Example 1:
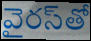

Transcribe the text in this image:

వైరస్‌తో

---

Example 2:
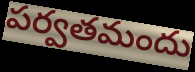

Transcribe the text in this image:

పర్వతమందు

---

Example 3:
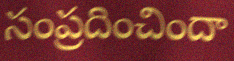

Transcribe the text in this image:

సంప్రదించిందా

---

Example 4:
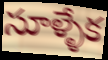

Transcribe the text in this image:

సూళ్ళేక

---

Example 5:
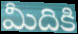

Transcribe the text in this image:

మీదికి